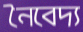
নৈবেদ্য